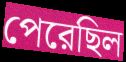
পেরেছিল